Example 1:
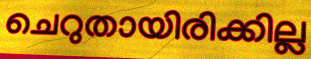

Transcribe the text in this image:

ചെറുതായിരിക്കില്ല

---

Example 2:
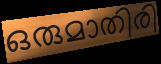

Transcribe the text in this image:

ഒരുമാതിരി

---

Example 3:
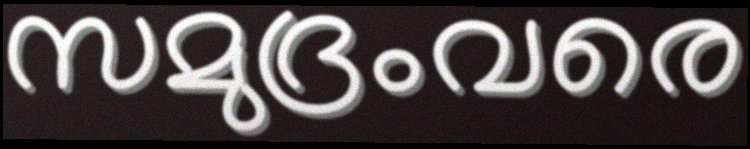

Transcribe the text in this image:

സമുദ്രംവരെ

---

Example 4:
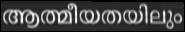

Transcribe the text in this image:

ആത്മീയതയിലും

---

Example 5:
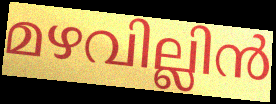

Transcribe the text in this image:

മഴവില്ലിൻ